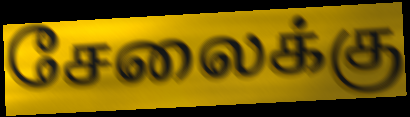
சேலைக்கு